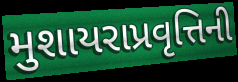
મુશાયરાપ્રવૃત્તિની